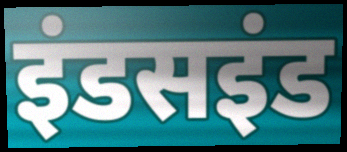
इंडसइंड